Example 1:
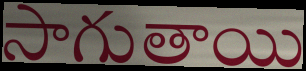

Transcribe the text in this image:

సాగుతాయి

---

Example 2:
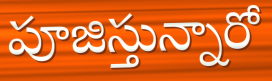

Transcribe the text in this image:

పూజిస్తున్నారో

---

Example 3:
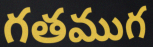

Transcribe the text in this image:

గతముగ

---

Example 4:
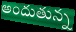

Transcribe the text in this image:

అందుతున్న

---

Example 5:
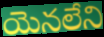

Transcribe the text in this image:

యెనలేని